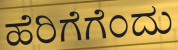
ಹೆರಿಗೆಗೆಂದು